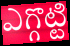
ఎగ్గొట్టి